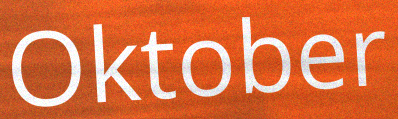
Oktober